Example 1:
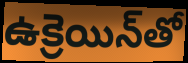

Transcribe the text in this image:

ఉక్రెయిన్‌తో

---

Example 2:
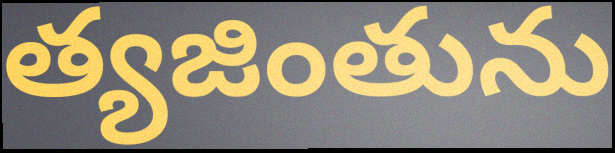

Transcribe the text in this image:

త్యజింతును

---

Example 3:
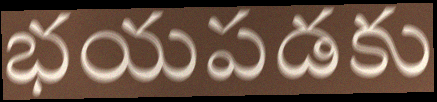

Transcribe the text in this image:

భయపడకు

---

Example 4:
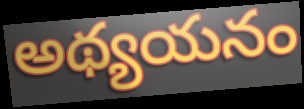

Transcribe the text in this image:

అథ్యయనం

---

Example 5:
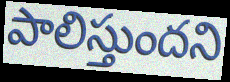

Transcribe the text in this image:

పాలిస్తుందని